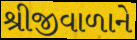
શ્રીજીવાળાને